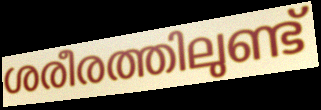
ശരീരത്തിലുണ്ട്